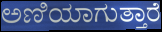
ಅಣಿಯಾಗುತ್ತಾರೆ